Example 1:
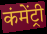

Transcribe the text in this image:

कंमेंट्री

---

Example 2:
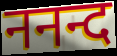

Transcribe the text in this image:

ननन्द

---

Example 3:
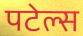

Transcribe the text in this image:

पटेल्स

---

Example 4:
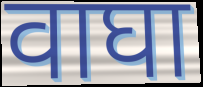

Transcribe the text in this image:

वाघा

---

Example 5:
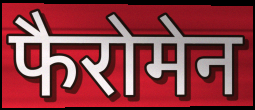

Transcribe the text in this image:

फैरोमेन